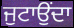
ਜੁਟਾਉਂਦਾ